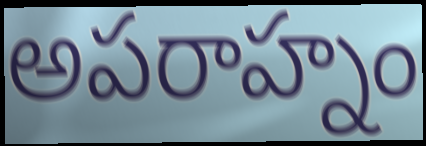
అపరాహ్నం